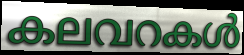
കലവറകൾ